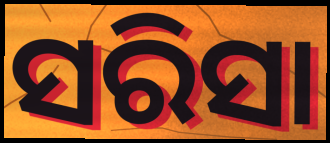
ସରିସା